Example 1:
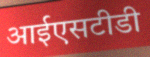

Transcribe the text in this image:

आईएसटीडी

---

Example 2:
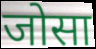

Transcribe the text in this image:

जोसा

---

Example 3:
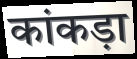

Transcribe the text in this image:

कांकड़ा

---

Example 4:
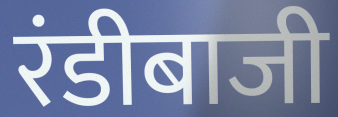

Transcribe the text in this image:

रंडीबाजी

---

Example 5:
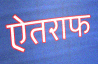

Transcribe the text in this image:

ऐतराफ